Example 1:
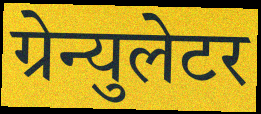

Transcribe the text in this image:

ग्रेन्युलेटर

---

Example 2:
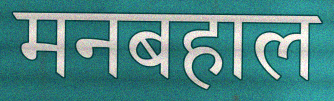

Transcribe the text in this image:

मनबहाल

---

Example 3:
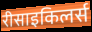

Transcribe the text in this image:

रीसाइकिलर्स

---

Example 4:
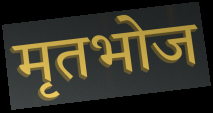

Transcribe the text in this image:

मृतभोज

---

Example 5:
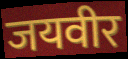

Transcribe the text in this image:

जयवीर